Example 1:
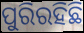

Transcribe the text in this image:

ପୁରିରହିଛି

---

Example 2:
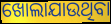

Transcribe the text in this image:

ଖୋଲାଯାଉଥିବା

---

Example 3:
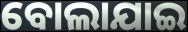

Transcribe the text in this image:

ବୋଲାଯାଇ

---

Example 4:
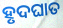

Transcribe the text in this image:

ହୃଦଘାତ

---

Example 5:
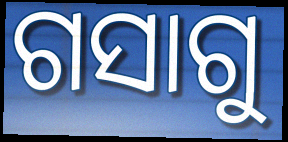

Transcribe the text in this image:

ଗସାଗୁ